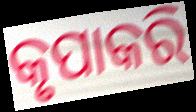
କୃପାକରି